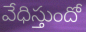
వేధిస్తుందో